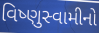
વિષ્ણુસ્વામીનો